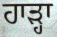
ਹਾੜ੍ਹਾ